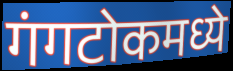
गंगटोकमध्ये